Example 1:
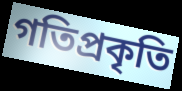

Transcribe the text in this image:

গতিপ্রকৃতি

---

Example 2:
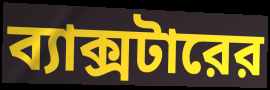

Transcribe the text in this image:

ব্যাক্সটারের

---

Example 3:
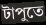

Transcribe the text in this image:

টাপুতে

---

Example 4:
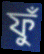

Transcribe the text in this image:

ফুঁ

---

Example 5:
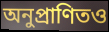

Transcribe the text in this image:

অনুপ্রাণিতও